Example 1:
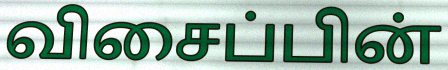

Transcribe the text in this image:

விசைப்பின்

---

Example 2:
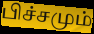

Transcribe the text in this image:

பிச்சமும்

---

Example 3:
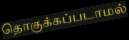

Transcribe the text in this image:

தொகுக்கப்படாமல்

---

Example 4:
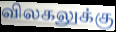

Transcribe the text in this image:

விலகலுக்கு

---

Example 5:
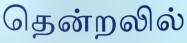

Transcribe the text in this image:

தென்றலில்